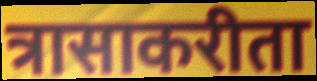
त्रासाकरीता